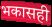
भकासही